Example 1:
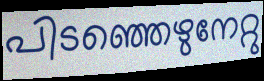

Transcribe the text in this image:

പിടഞ്ഞെഴുനേറ്റു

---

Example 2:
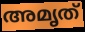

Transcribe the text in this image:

അമൃത്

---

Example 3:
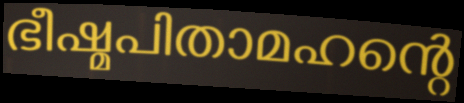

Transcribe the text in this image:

ഭീഷ്മപിതാമഹന്റെ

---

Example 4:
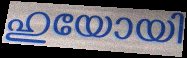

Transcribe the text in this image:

ഹുയോയി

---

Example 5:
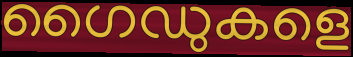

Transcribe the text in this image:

ഗൈഡുകളെ